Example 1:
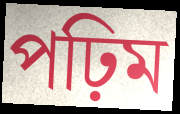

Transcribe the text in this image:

পঢ়িম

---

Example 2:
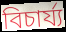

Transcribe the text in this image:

বিচাৰ্য্য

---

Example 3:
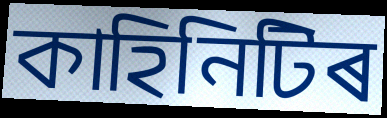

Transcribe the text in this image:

কাহিনিটিৰ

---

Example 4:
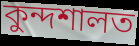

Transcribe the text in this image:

কুন্দশালত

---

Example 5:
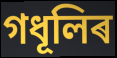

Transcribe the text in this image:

গধূলিৰ